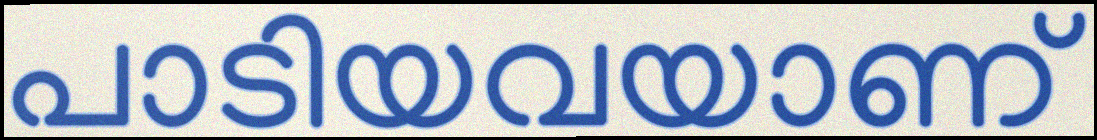
പാടിയവയാണ്